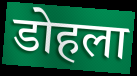
डोहला